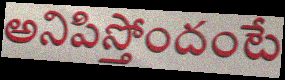
అనిపిస్తోందంటే